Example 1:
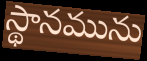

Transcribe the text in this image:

స్థానమును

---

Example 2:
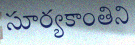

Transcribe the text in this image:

సూర్యకాంతిని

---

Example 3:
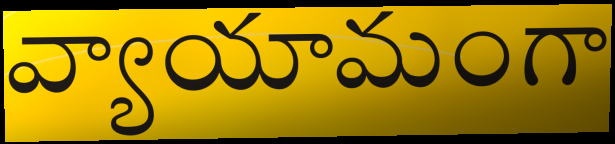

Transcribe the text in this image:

వ్యాయామంగా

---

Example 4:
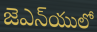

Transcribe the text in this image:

జెఎన్‌యులో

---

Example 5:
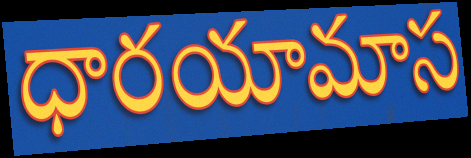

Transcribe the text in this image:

ధారయామాస